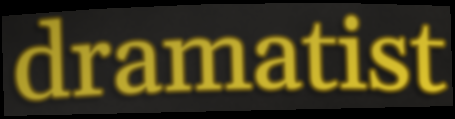
dramatist